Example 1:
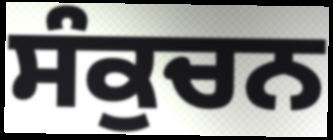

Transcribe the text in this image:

ਸੰਕੁਚਨ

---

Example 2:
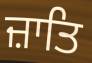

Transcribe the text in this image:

ਜ਼ਾਤਿ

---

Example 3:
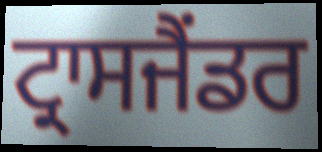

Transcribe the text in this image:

ਟ੍ਰਾਸਜੈਂਡਰ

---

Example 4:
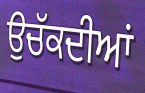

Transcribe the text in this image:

ਉਚੱਕਦੀਆਂ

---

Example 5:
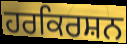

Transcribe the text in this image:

ਹਰਕਿਰਸ਼ਨ